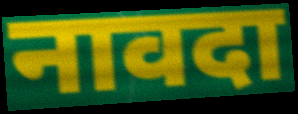
नावदा